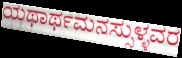
ಯಥಾರ್ಥಮನಸ್ಸುಳ್ಳವರ